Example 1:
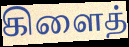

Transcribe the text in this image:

கிளைத்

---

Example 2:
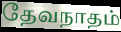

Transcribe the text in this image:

தேவநாதம்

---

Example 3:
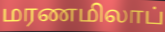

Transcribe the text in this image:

மரணமிலாப்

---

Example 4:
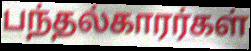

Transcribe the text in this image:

பந்தல்காரர்கள்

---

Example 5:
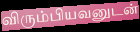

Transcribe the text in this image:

விரும்பியவனுடன்